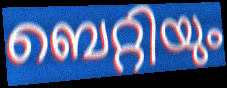
ബെറ്റിയും